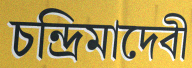
চন্দ্রিমাদেবী